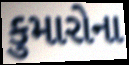
કુમારોના